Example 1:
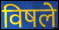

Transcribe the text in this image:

विषले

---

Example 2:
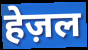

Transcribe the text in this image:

हेज़ल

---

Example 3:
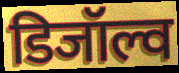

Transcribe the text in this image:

डिजॉल्व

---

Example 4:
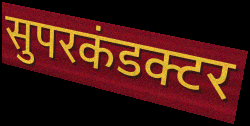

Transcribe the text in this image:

सुपरकंडक्टर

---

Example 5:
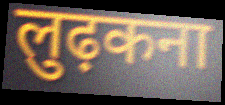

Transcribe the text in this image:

लुढ़कना